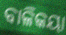
ବାଳିକୟା